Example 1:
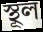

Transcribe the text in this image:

স্থূল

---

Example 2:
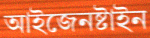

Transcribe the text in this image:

আইজেনষ্টাইন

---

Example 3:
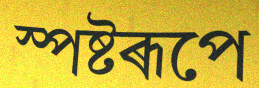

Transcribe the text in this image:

স্পষ্টৰূপে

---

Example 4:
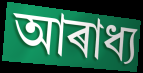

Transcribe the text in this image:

আৰাধ্য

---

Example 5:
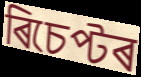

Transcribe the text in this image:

ৰিচেপ্টৰ